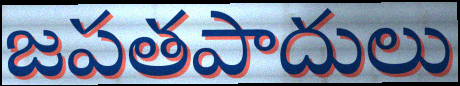
జపతపాదులు